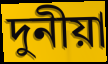
দুনীয়া